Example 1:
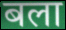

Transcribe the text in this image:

बला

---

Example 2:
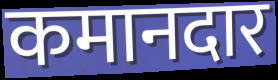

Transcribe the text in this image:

कमानदार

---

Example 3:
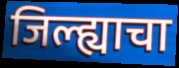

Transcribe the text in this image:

जिल्ह्याचा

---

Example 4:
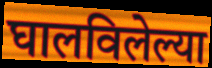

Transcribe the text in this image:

घालविलेल्या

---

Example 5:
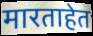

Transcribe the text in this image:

मारताहेत